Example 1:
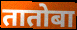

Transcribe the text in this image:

तातोबा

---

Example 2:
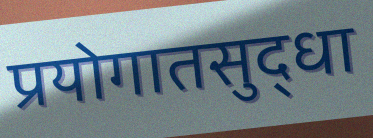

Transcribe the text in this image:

प्रयोगातसुद्धा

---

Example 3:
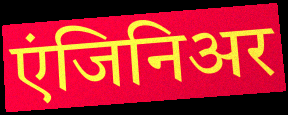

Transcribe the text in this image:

एंजिनिअर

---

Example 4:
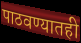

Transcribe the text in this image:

पाठवण्यातही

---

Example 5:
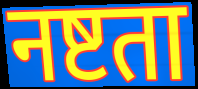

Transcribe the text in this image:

नष्टता